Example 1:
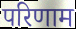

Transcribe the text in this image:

परिणाम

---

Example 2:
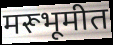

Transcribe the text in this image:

मरूभूमीत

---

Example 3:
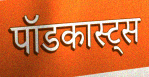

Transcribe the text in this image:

पॉडकास्ट्स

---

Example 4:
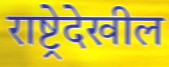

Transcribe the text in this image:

राष्ट्रेदेखील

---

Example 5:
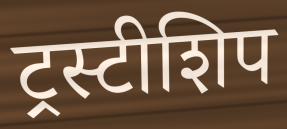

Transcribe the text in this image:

ट्रस्टीशिप